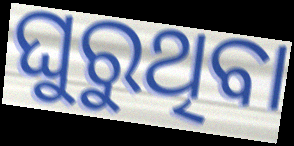
ଘୁରୁଥିବା